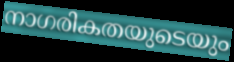
നാഗരികതയുടെയും